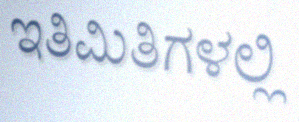
ಇತಿಮಿತಿಗಳಲ್ಲಿ